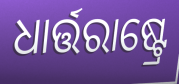
ଧାର୍ତ୍ତରାଷ୍ଟ୍ରେ